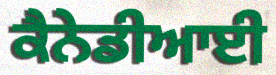
ਕੈਨੇਡੀਆਈ